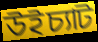
উইচ্যাট